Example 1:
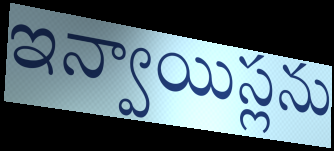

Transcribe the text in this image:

ఇన్వాయిస్లను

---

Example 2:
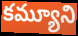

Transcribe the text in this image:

కమ్యూని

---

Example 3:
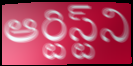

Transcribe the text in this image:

ఆర్టిస్ట్‌ని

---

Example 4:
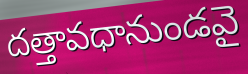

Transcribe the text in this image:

దత్తావధానుండవై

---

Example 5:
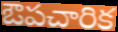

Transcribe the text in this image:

ఔపచారిక